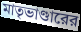
মাতৃভাণ্ডারের